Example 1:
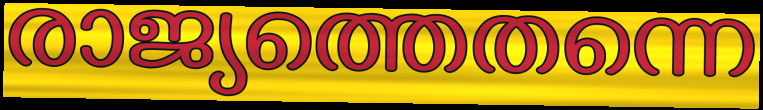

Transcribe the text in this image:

രാജ്യത്തെതന്നെ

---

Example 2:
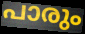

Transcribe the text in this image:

പാരും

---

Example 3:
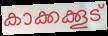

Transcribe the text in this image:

കാക്കക്കൂട്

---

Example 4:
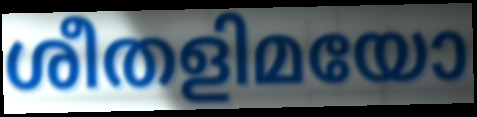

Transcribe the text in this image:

ശീതളിമയോ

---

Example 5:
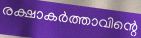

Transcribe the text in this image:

രക്ഷാകർത്താവിന്റെ